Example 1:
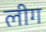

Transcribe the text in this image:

लीग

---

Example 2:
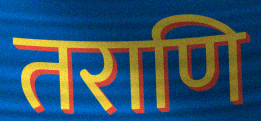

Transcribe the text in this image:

तराणि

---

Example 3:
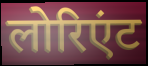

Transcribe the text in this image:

लोरिएंट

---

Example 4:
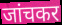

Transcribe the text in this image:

जांचकर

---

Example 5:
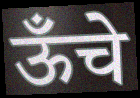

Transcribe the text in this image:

ऊँचे